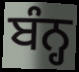
ਬੰਨ੍ਹ